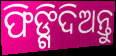
ଫିଙ୍ଗିଦିଅନ୍ତୁ